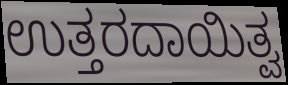
ಉತ್ತರದಾಯಿತ್ವ